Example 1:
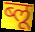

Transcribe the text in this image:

ब्लू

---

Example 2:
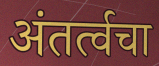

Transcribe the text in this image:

अंतर्त्वचा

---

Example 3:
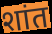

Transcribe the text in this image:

शांत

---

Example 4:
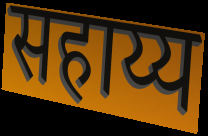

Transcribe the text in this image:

सहाय्य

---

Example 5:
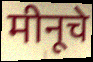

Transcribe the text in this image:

मीनूचे